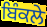
ਬਿੰਕਲੇ